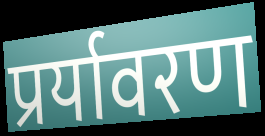
प्रर्यावरण